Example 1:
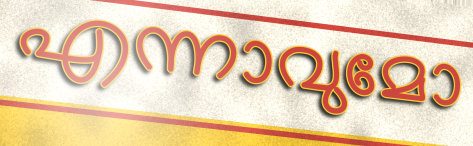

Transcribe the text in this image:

എന്നാവുമോ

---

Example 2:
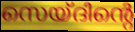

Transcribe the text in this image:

സെയ്ദിന്റെ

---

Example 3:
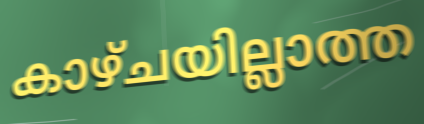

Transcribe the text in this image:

കാഴ്ചയില്ലാത്ത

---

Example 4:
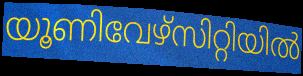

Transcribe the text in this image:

യൂണിവേഴ്സിറ്റിയിൽ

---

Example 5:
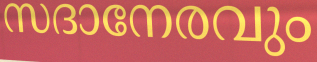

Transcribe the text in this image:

സദാനേരവും